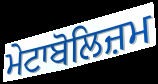
ਮੇਟਾਬੋਲਿਜ਼ਮ